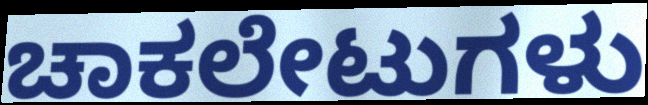
ಚಾಕಲೇಟುಗಳು